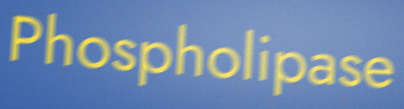
Phospholipase